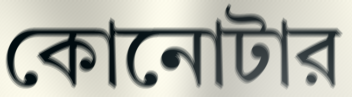
কোনোটার